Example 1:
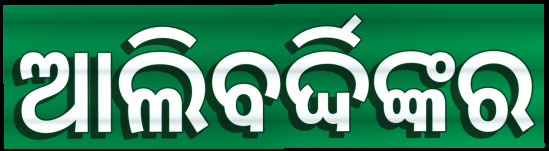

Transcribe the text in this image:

ଆଲିବର୍ଦ୍ଦିଙ୍କର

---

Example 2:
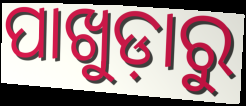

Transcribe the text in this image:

ପାଖୁଡ଼ାରୁ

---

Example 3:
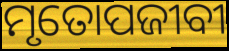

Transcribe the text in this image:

ମୃତୋପଜୀବୀ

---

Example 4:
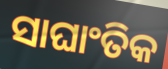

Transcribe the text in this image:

ସାଘାଂତିକ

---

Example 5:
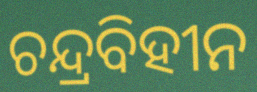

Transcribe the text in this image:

ଚନ୍ଦ୍ରବିହୀନ